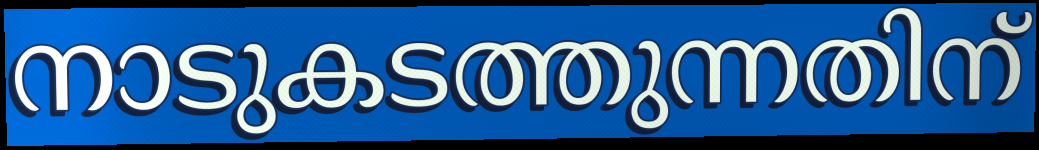
നാടുകടത്തുന്നതിന്